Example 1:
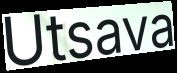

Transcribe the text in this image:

Utsava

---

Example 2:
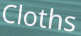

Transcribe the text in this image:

Cloths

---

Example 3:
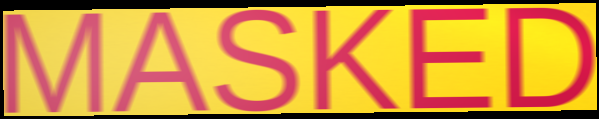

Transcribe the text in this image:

MASKED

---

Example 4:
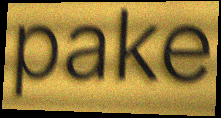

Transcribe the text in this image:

pake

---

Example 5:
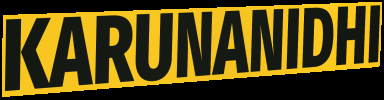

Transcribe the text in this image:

KARUNANIDHI